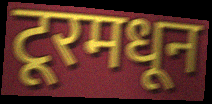
टूरमधून